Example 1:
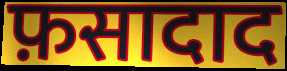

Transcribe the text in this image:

फ़सादाद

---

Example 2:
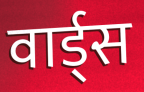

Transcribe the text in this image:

वार्ड्स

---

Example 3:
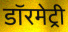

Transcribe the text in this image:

डॉरमेट्री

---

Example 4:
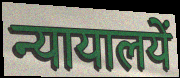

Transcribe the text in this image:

न्यायालयें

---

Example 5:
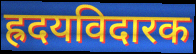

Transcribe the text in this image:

ह्रदयविदारक